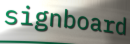
signboard